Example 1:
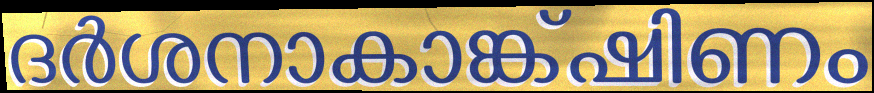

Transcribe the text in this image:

ദർശനാകാങ്ക്ഷിണം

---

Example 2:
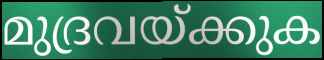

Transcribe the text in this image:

മുദ്രവയ്ക്കുക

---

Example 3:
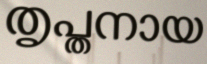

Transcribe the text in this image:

തൃപ്തനായ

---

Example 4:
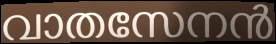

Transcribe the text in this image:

വാതസേനൻ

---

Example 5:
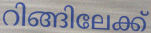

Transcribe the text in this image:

റിങ്ങിലേക്ക്